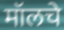
मॉलचे